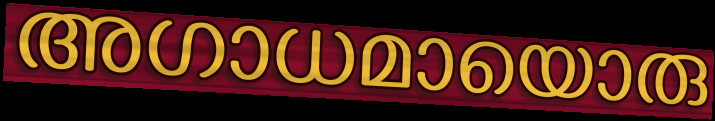
അഗാധമായൊരു